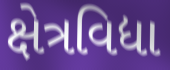
ક્ષેત્રવિદ્યા